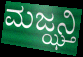
ಮಜ್ಝನ್ತಿ